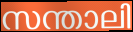
സന്താലി